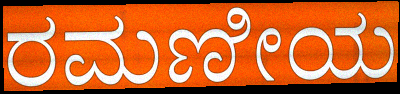
ರಮಣೀಯ